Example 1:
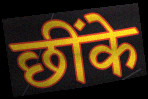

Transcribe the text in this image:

छींके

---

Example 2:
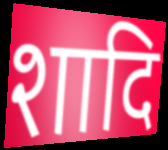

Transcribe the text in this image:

शादि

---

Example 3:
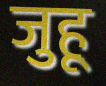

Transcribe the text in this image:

जुहू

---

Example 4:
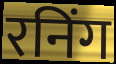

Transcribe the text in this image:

रनिंग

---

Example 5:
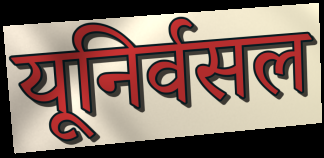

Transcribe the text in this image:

यूनिर्वसल